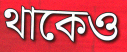
থাকেও